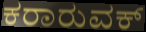
ಕರಾರುವಕ್